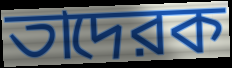
তাদেরক